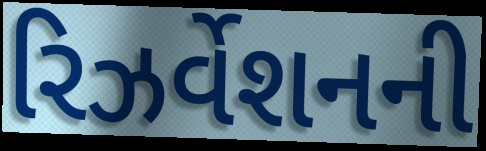
રિઝર્વેશનની